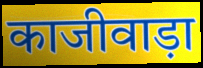
काजीवाड़ा